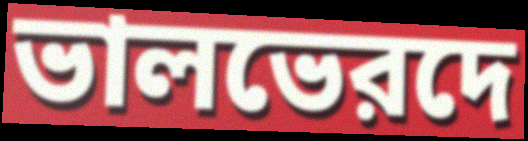
ভালভেরদে